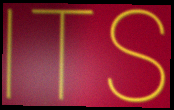
ITS